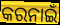
କରନାଇଁ